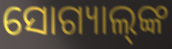
ସୋଗ୍ୟାଲ୍‌ଙ୍କ